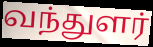
வந்துளர்